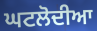
ਘਟਲੋਦੀਆ